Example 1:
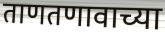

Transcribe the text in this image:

ताणतणावाच्या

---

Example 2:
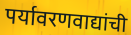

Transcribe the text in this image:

पर्यावरणवाद्यांची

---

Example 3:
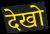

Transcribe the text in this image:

देखो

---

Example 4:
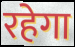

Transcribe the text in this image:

रहेगा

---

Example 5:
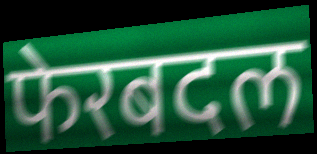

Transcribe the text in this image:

फेरबदल